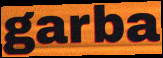
garba